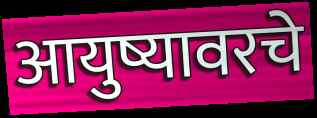
आयुष्यावरचे